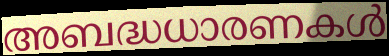
അബദ്ധധാരണകൾ